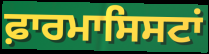
ਫ਼ਾਰਮਾਸਿਸਟਾਂ